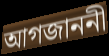
আগজাননী